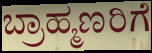
ಬ್ರಾಹ್ಮಣರಿಗೆ